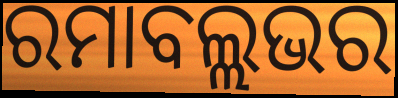
ରମାବଲ୍ଲଭର